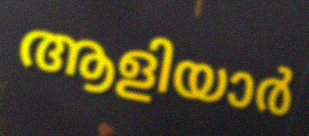
ആളിയാർ